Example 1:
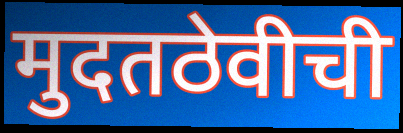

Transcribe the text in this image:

मुदतठेवीची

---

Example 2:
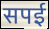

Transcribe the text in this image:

सपई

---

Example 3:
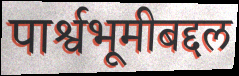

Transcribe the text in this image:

पार्श्वभूमीबद्दल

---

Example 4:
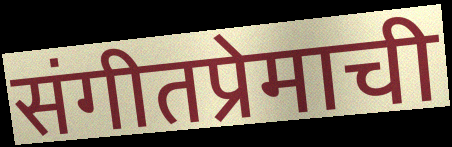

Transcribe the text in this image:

संगीतप्रेमाची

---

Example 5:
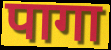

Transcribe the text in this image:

पागा